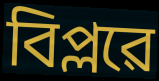
বিপ্লৱে